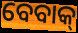
ବେବାକ୍